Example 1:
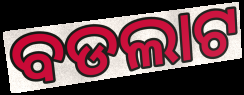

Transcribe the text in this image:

ବଡଲାଟ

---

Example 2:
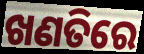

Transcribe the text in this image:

ଖଣତିରେ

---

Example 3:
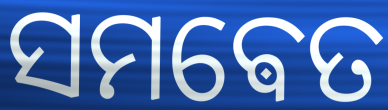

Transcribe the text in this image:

ସମଵେତ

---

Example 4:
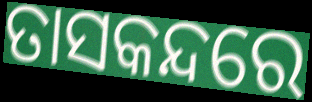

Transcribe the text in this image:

ତାସକନ୍ଦରେ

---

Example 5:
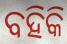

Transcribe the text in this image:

ବହିକି